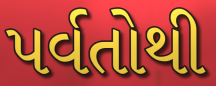
પર્વતોથી